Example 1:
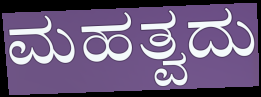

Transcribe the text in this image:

ಮಹತ್ವದು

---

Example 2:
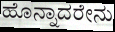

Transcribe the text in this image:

ಹೊನ್ನಾದರೇನು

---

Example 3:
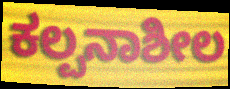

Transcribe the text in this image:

ಕಲ್ಪನಾಶೀಲ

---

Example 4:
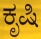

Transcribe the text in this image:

ಕೃಷಿ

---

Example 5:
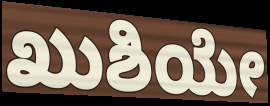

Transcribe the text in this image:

ಖುಶಿಯೇ